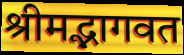
श्रीमद्भागवत